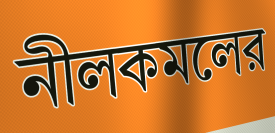
নীলকমলের